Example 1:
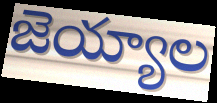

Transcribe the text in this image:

జెయ్యాల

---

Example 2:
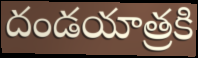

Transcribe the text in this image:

దండయాత్రకి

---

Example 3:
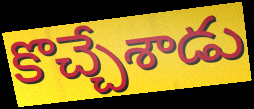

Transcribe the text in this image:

కొచ్చేశాడు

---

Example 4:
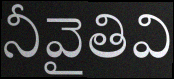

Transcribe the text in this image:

నీవైతివి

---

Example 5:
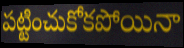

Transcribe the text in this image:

పట్టించుకోకపోయినా